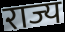
राज्‍य